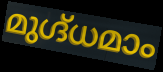
മുഗ്ദ്ധമാം